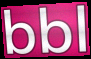
bbl